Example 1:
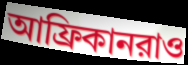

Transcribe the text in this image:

আফ্রিকানরাও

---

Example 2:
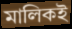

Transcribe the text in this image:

মালিকই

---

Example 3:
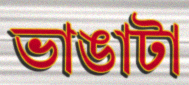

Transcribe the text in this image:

ভাঙাটা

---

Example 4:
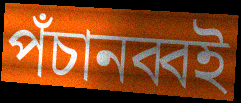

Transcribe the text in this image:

পঁচানব্বই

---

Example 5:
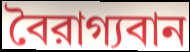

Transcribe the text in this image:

বৈরাগ্যবান